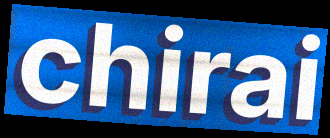
chirai